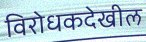
विरोधकदेखील